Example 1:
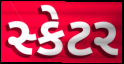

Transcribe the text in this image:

સ્કેટર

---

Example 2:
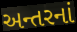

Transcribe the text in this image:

અન્તરનાં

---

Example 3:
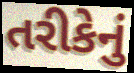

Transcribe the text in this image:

તરીકેનું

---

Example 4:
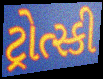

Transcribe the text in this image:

ટ્રોત્સ્કી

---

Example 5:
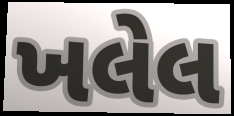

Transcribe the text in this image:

ખલેલ